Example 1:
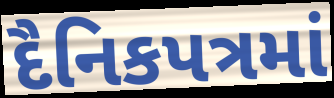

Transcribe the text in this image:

દૈનિકપત્રમાં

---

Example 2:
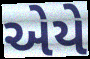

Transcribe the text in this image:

એયે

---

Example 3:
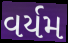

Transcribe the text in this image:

વર્યમ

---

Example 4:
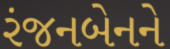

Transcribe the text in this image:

રંજનબેનને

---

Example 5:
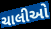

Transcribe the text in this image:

ચાલીઓ